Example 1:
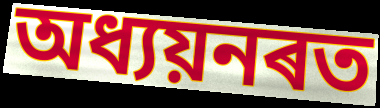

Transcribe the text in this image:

অধ্যয়নৰত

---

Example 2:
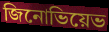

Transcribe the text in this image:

জিনোভিয়েভ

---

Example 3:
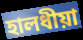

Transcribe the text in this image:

হালধীয়া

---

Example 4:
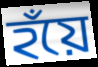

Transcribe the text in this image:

হঁয়ে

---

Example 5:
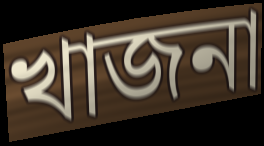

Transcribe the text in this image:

খাজনা